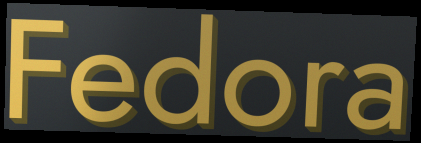
Fedora